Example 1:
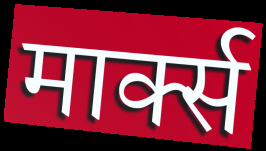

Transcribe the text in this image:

मार्क्स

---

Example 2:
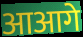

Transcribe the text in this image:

आआगे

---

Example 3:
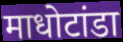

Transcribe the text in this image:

माधोटांडा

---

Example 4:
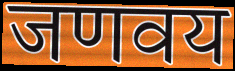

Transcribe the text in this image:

जणवय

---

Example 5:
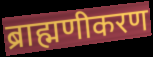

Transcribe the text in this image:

ब्राह्मणीकरण